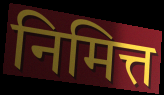
निमित्त